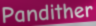
Pandither